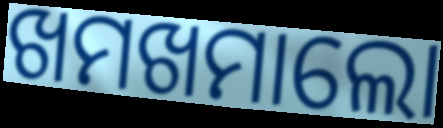
ଖମଖମାଲୋ